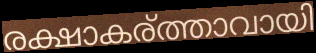
രക്ഷാകര്ത്താവായി